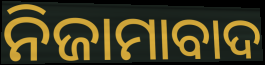
ନିଜାମାବାଦ